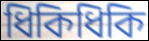
ধিকিধিকি